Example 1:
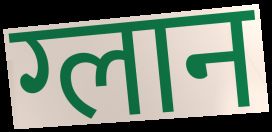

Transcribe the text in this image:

ग्लान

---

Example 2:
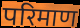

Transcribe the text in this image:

परिमाण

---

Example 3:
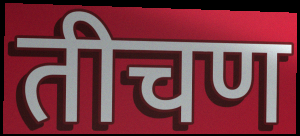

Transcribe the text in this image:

तीचण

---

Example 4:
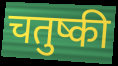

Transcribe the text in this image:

चतुष्की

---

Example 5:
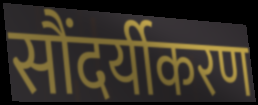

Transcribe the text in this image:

सौंदर्यीकरण